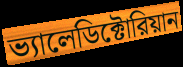
ভ্যালেডিক্টোরিয়ান